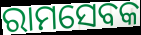
ରାମସେବକ